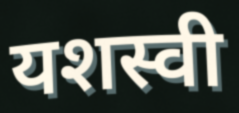
यशस्वी